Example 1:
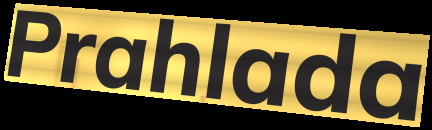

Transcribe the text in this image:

Prahlada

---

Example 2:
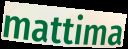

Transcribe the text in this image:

mattima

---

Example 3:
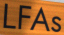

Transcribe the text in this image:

LFAs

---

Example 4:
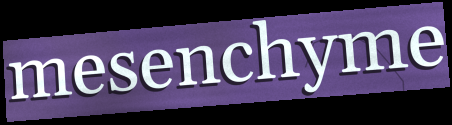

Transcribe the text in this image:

mesenchyme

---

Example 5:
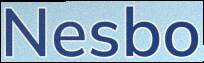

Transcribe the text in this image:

Nesbo